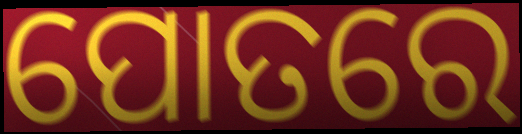
ପୋତରେ